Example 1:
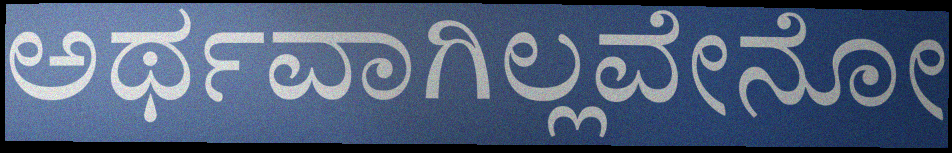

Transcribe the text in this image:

ಅರ್ಥವಾಗಿಲ್ಲವೇನೋ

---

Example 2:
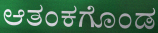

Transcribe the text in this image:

ಆತಂಕಗೊಂಡ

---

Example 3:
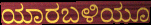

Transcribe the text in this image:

ಯಾರಬಳಿಯೂ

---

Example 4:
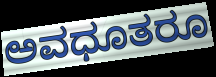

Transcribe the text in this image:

ಅವಧೂತರೂ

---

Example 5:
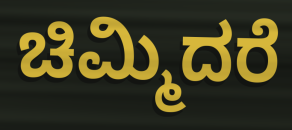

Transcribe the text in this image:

ಚಿಮ್ಮಿದರೆ